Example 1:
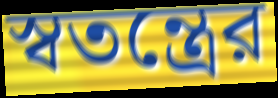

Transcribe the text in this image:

স্বতন্ত্রের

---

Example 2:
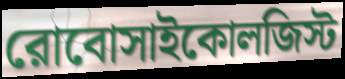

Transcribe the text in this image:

রোবোসাইকোলজিস্ট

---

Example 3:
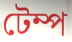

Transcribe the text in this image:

টেম্প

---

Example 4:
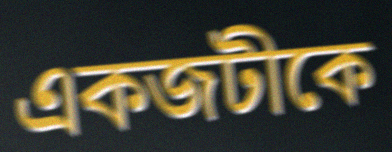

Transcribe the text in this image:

একজটীকে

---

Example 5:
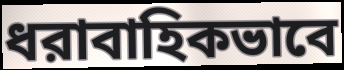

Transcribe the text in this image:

ধরাবাহিকভাবে